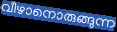
വീഴാനൊരുങ്ങുന്ന